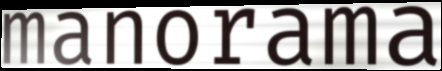
manorama